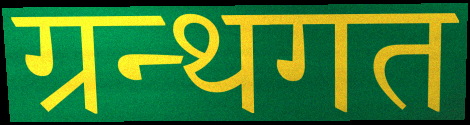
ग्रन्थगत